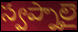
స్వప్నాలై